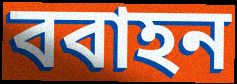
ববাহন